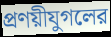
প্রণয়ীযুগলের